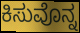
ಕಿಸುವೊನ್ನ